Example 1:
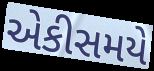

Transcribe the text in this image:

એકીસમયે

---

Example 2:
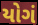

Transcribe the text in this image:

યોગં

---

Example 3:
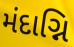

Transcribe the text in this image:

મંદાગ્નિ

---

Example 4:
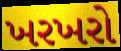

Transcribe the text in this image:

ખરખરો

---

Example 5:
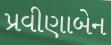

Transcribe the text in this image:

પ્રવીણાબેન